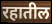
रहातील